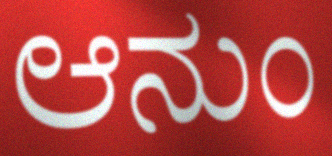
ಆನುಂ